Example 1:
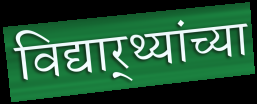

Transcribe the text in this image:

विद्यार्थ्यांच्या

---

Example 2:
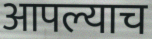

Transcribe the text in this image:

आपल्याच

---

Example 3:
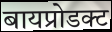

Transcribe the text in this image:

बायप्रोडक्ट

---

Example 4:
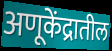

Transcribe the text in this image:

अणूकेंद्रातील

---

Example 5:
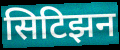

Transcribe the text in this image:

सिटिझन